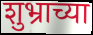
शुभ्राच्या